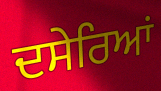
ਦਸੇਰਿਆਂ